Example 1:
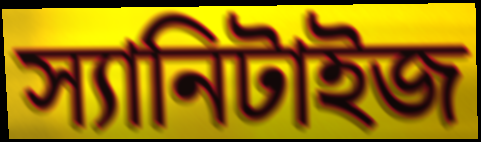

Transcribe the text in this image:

স্যানিটাইজ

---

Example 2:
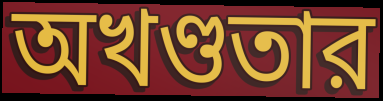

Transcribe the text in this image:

অখণ্ডতার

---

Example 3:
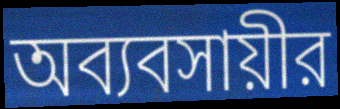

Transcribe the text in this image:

অব্যবসায়ীর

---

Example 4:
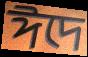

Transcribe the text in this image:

ঈদে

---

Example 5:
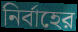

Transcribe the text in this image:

নির্বাহের